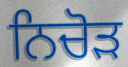
ਨਿਚੋੜ